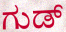
ಗುಡ್